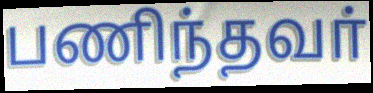
பணிந்தவர்